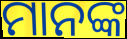
ମାନଙ୍କ